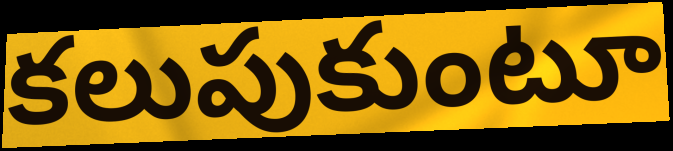
కలుపుకుంటూ